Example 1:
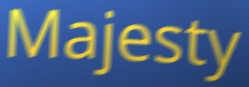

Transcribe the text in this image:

Majesty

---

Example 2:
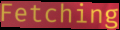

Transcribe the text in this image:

Fetching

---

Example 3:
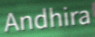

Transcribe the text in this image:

Andhira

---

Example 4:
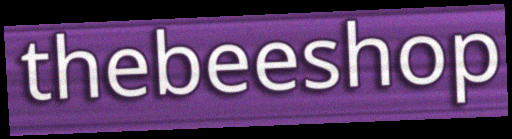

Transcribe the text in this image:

thebeeshop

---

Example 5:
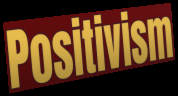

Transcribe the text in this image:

Positivism